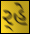
ર્‍હે